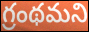
గ్రంథమని